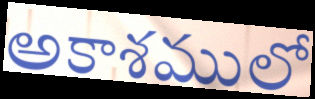
అకాశములో